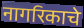
नागरिकाचे